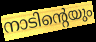
നാടിന്റെയും